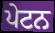
ਪੇਟਨ